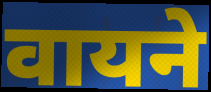
वायने